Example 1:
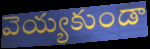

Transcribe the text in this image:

వెయ్యకుండా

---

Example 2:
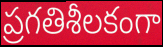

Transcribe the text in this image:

ప్రగతిశీలకంగా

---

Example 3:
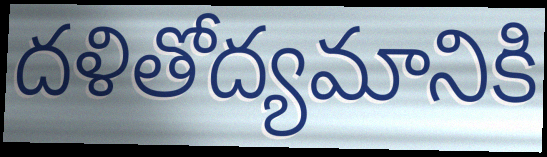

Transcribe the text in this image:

దళితోద్యమానికి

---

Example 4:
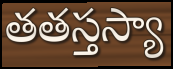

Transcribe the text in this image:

తతస్తస్యా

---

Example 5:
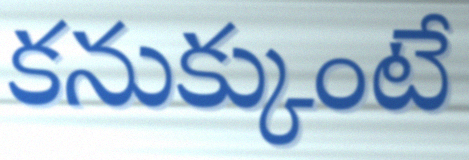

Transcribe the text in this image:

కనుక్కుంటే